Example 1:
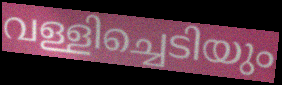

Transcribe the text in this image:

വള്ളിച്ചെടിയും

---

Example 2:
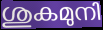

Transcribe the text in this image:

ശുകമുനി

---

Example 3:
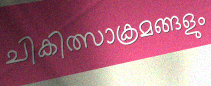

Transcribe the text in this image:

ചികിത്സാക്രമങ്ങളും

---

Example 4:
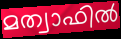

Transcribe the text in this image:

മത്വാഫിൽ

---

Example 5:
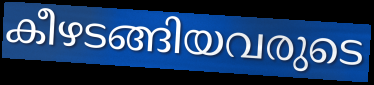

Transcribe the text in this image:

കീഴടങ്ങിയവരുടെ